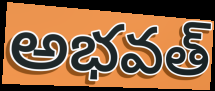
అభవత్